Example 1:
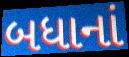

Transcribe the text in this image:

બધાનાં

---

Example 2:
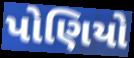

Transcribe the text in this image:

પોણિયો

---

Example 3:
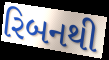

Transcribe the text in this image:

રિબનથી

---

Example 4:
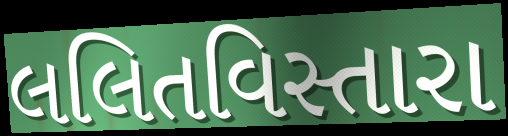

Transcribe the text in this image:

લલિતવિસ્તારા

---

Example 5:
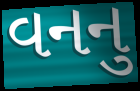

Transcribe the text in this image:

વનનુ